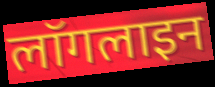
लॉगलाइन